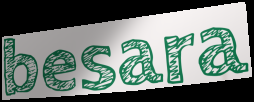
besara